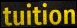
tuition